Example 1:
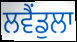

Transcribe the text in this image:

ਲਵੈਂਡੁਲਾ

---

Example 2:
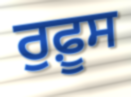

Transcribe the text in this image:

ਰੁਫ਼ੂਸ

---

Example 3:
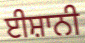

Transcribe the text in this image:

ਈਸ਼ਾਨੀ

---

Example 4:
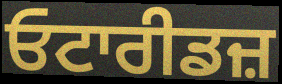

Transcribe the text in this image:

ਓਟਾਰੀਡਜ਼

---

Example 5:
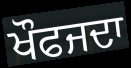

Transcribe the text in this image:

ਖੌਫਜਦਾ